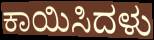
ಕಾಯಿಸಿದಳು